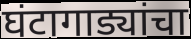
घंटागाड्यांचा